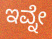
ಇವ್ನೇ